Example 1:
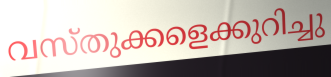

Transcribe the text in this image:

വസ്തുക്കളെക്കുറിച്ചു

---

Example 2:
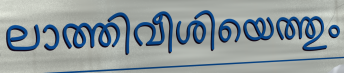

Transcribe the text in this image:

ലാത്തിവീശിയെത്തും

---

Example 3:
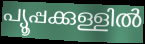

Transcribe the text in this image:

പ്യൂപ്പക്കുള്ളിൽ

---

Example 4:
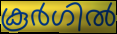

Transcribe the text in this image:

കൂർഗിൽ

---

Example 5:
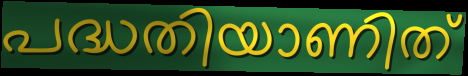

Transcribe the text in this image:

പദ്ധതിയാണിത്